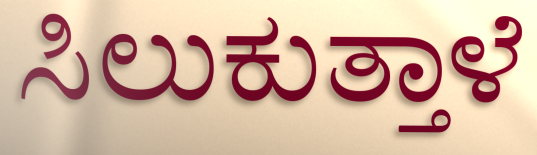
ಸಿಲುಕುತ್ತಾಳೆ